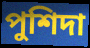
পুশিদা